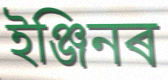
ইঞ্জিনৰ